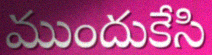
ముందుకేసి